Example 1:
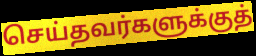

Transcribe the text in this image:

செய்தவர்களுக்குத்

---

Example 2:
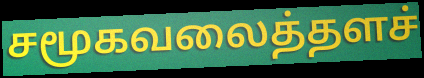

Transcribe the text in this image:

சமூகவலைத்தளச்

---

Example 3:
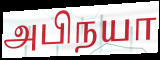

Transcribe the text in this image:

அபிநயா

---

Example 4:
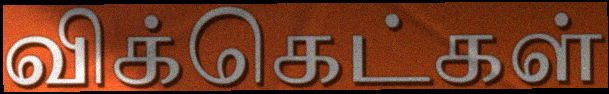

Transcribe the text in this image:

விக்கெட்கள்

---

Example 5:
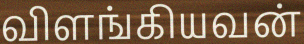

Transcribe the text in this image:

விளங்கியவன்